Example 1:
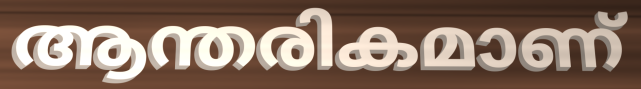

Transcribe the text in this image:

ആന്തരികമാണ്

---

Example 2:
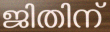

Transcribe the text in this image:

ജിതിന്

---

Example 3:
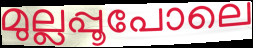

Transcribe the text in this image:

മുല്ലപ്പൂപോലെ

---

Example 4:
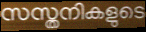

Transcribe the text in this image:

സസ്തനികളുടെ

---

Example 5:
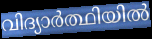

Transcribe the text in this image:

വിദ്യാർത്ഥിയിൽ